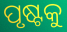
ପୃଷ୍ଟକୁ